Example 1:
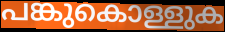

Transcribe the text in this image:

പങ്കുകൊള്ളുക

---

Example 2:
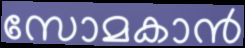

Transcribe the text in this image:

സോമകാൻ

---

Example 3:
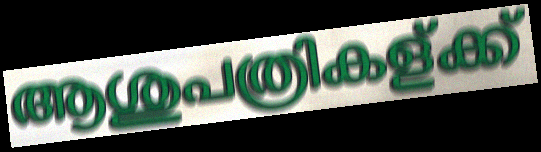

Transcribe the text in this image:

ആശുപത്രികള്ക്ക്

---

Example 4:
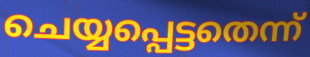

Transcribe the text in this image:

ചെയ്യപ്പെട്ടതെന്ന്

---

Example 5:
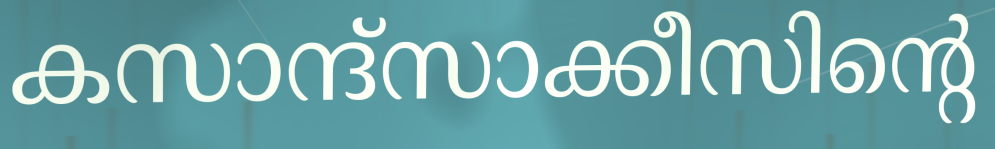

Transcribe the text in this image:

കസാന്ദ്സാക്കീസിന്റെ